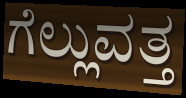
ಗೆಲ್ಲುವತ್ತ